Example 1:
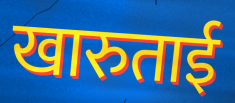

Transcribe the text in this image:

खारुताई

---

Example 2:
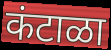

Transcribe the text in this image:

कंटाळा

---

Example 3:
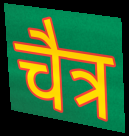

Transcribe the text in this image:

चैत्र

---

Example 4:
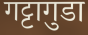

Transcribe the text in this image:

गट्टागुडा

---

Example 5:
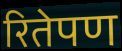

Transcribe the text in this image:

रितेपण